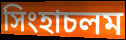
সিংহাচলম